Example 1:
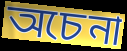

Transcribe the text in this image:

অচেনা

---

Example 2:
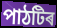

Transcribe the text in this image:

পাঠটিৰ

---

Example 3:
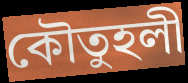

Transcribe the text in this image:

কৌতুহলী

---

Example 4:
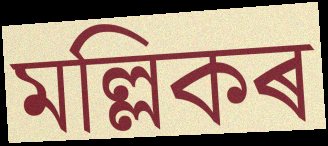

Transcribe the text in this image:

মল্লিকৰ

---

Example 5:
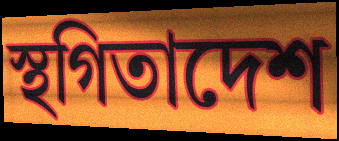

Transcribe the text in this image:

স্থগিতাদেশ